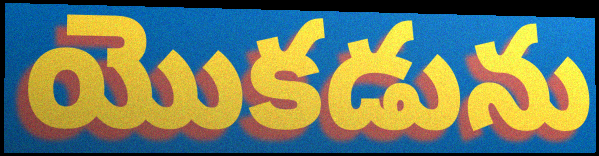
యొకడును